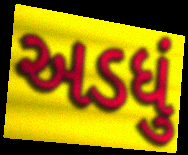
અડધું